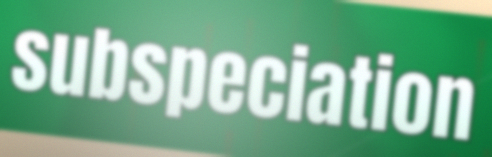
subspeciation